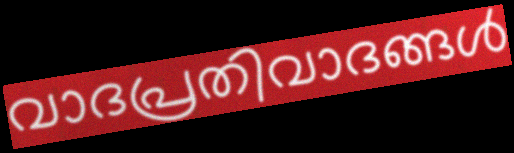
വാദപ്രതിവാദങ്ങൾ